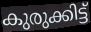
കുരുക്കിട്ട്